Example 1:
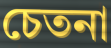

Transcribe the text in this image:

চেতনা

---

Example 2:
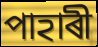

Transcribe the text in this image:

পাহাৰী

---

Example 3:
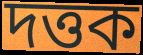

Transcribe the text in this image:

দত্তক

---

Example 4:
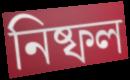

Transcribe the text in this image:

নিষ্ফল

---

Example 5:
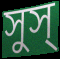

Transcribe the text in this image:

সুস্